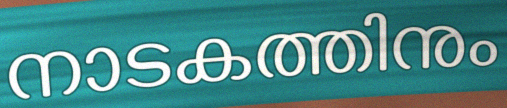
നാടകത്തിനും